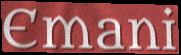
Emani